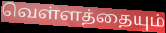
வெள்ளத்தையும்